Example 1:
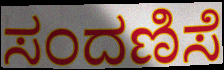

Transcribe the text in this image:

ಸಂದಣಿಸೆ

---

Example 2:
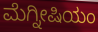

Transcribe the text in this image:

ಮೆಗ್ನೀಷಿಯಂ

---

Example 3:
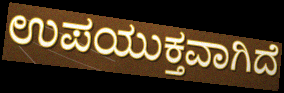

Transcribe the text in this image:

ಉಪಯುಕ್ತವಾಗಿದೆ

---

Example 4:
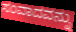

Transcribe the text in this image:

ಸಂವಾದವನ್ನು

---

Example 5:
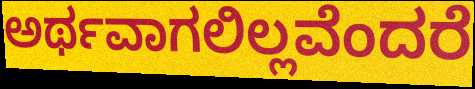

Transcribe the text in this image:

ಅರ್ಥವಾಗಲಿಲ್ಲವೆಂದರೆ